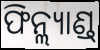
ଫିନ୍ଲ୍ୟାଣ୍ଡ୍